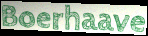
Boerhaave